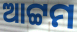
ଆଟ୍ଟମ